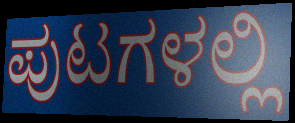
ಪುಟಗಳಲ್ಲಿ